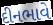
દીનભાવે